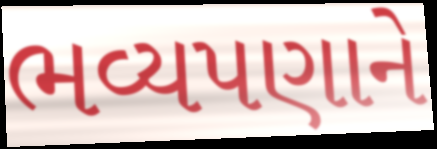
ભવ્યપણાને